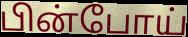
பின்போய்